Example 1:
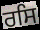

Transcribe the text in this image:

ਰਸਿ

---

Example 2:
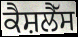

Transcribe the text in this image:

ਕੈਸ਼ਲੈੱਸ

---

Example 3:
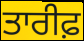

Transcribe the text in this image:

ਤਾਰੀਫ਼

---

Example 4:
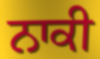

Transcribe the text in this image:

ਨਾਕੀ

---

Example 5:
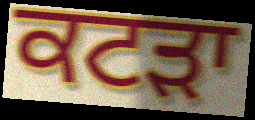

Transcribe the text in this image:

ਕਟੜਾ